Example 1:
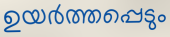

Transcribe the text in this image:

ഉയർത്തപ്പെടും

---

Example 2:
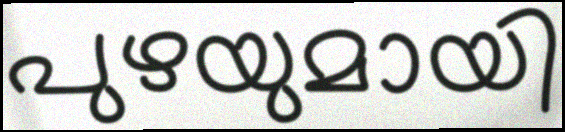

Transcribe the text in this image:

പുഴയുമായി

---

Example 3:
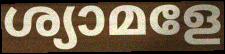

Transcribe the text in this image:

ശ്യാമളേ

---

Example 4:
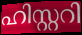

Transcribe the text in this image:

ഹിസ്റ്ററി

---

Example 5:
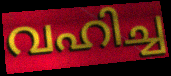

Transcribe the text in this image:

വഹിച്ച